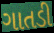
ગાતડી